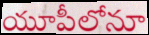
యూపీలోనూ